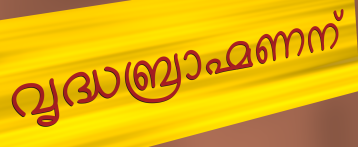
വൃദ്ധബ്രാഹ്മണന്